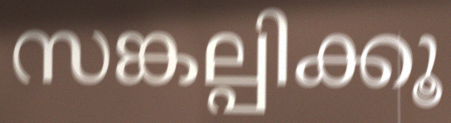
സങ്കല്പിക്കൂ